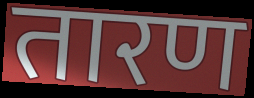
तारण